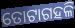
ତୋଟାଗହଳି